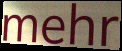
mehr